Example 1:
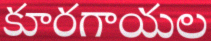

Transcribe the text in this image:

కూరగాయల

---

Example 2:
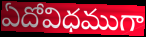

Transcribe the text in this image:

ఏదోవిధముగా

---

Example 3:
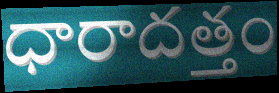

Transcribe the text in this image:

ధారాదత్తం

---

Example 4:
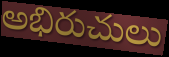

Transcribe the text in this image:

అభిరుచులు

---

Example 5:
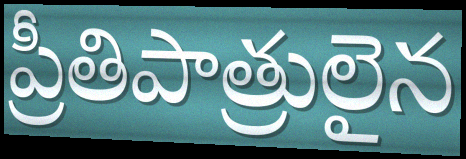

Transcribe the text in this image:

ప్రీతిపాత్రులైన